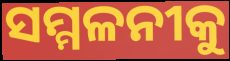
ସମ୍ମଳନୀକୁ